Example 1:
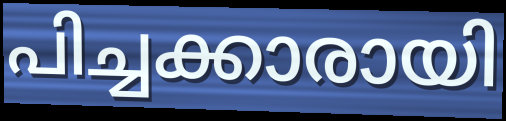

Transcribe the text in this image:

പിച്ചക്കാരായി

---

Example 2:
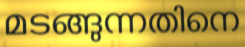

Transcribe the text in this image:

മടങ്ങുന്നതിനെ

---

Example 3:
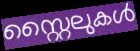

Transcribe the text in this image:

സ്റ്റൈലുകൾ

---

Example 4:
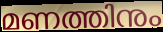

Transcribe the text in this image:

മണത്തിനും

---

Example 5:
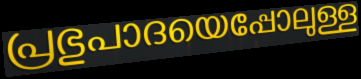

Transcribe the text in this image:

പ്രഭുപാദയെപ്പോലുള്ള